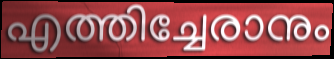
എത്തിച്ചേരാനും